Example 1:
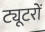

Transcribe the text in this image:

ट्यूटरों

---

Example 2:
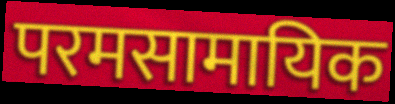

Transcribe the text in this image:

परमसामायिक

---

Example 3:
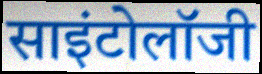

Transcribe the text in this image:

साइंटोलॉजी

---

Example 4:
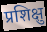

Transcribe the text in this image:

प्रशिक्षु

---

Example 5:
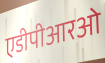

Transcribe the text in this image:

एडीपीआरओ